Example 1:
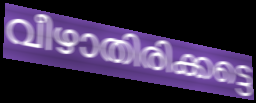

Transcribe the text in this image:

വീഴാതിരിക്കട്ടെ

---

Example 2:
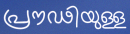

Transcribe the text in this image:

പ്രൗഢിയുള്ള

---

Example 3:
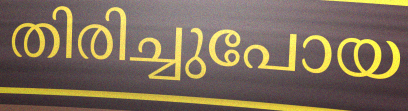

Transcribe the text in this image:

തിരിച്ചുപോയ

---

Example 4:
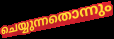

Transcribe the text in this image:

ചെയ്യുന്നതൊന്നും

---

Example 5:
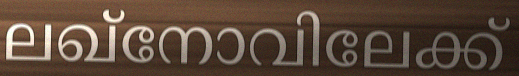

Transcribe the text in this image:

ലഖ്നോവിലേക്ക്